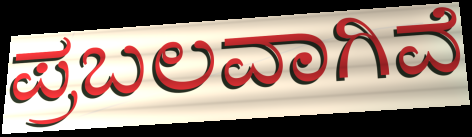
ಪ್ರಬಲವಾಗಿವೆ